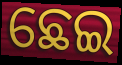
ଛେଇ